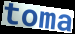
toma